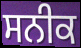
ਸਨੀਕ